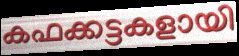
കഫക്കട്ടകളായി